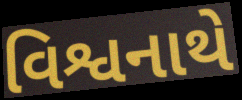
વિશ્વનાથે